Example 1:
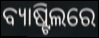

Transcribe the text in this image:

ବ୍ୟାଷ୍ଟିଲରେ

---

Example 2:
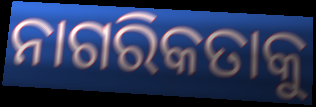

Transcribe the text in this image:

ନାଗରିକତାକୁ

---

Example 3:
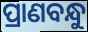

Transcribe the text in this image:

ପ୍ରାଣବନ୍ଧୁ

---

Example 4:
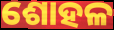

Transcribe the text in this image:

ଶୋହଳ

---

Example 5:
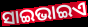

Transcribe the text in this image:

ସାଇଭାଇଏ